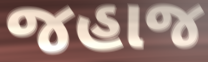
જહાજ